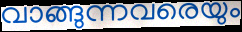
വാങ്ങുന്നവരെയും